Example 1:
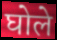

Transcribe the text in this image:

घोले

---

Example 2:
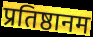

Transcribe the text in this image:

प्रतिष्ठानम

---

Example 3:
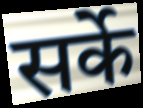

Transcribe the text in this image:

सर्के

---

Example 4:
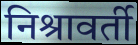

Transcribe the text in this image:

निश्रावर्ती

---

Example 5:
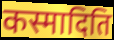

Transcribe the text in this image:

कस्मादिति